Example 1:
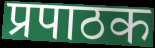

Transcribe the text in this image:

प्रपाठक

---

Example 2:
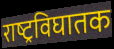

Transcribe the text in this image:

राष्ट्रविघातक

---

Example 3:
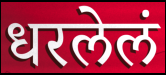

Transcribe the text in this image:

धरलेलं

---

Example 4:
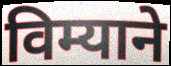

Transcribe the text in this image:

विम्याने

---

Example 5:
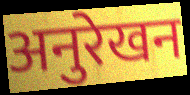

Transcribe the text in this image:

अनुरेखन